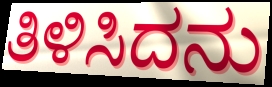
ತಿಳಿಸಿದನು